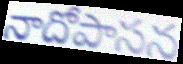
నాదోపాసన